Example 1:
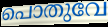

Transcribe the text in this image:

പൊതുവേ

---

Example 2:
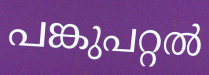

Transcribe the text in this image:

പങ്കുപറ്റൽ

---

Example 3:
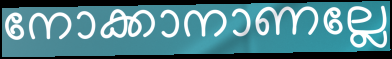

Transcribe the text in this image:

നോക്കാനാണല്ലേ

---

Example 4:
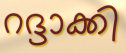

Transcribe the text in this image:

റദ്ദാക്കി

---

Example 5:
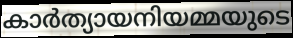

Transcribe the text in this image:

കാർത്യായനിയമ്മയുടെ